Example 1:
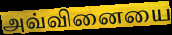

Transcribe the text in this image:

அவ்வினையை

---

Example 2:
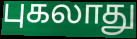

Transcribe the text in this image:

புகலாது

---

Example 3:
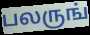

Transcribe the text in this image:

பலருங்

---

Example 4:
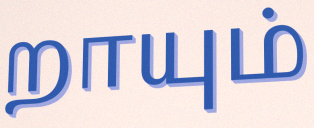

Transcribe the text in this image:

றாயும்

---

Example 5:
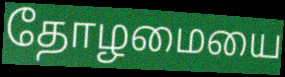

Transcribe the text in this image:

தோழமையை